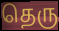
தெரு